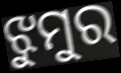
ଝୁମୁର